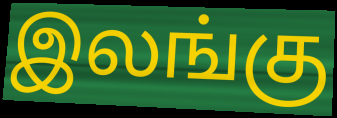
இலங்கு